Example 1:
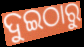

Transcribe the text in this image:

ଦୁଇଠାରୁ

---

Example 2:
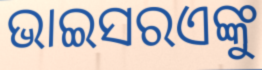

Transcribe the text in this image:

ଭାଇସରଏଙ୍କୁ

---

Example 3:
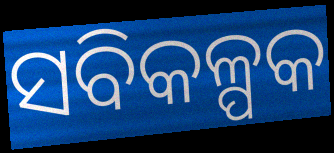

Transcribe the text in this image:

ସବିକଳ୍ପକ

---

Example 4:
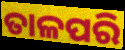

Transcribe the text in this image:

ତାଳପରି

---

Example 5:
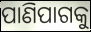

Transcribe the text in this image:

ପାଣିପାଗକୁ